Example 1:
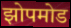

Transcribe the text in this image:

झोपमोड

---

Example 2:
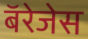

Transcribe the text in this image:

बॅरेजेस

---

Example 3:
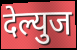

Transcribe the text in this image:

देल्युज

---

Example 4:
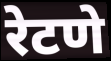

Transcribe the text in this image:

रेटणे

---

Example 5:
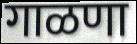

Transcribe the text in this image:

गाळणा